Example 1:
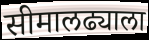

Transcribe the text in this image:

सीमालढ्याला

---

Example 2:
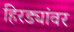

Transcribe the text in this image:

हिरड्यांवर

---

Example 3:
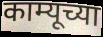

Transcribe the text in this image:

काम्यूच्या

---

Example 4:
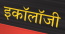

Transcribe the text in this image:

इकॉलॉजी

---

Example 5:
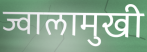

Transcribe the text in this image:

ज्वालामुखी